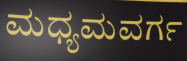
ಮಧ್ಯಮವರ್ಗ